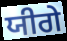
ਯੀਗੇ